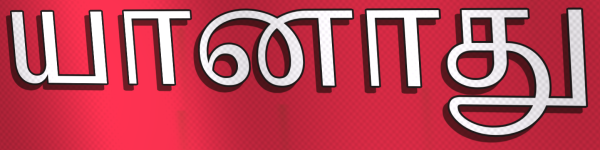
யானாது